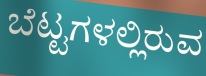
ಬೆಟ್ಟಗಳಲ್ಲಿರುವ